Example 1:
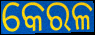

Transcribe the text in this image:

କେରଳ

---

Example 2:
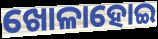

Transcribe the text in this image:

ଖୋଳାହୋଇ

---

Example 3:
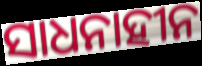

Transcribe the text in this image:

ସାଧନାହୀନ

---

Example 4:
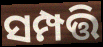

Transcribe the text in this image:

ସମ୍ପତ୍ତି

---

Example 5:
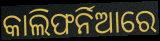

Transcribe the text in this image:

କାଲିଫର୍ନିଆରେ